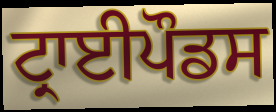
ਟ੍ਰਾਈਪੌਡਸ